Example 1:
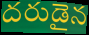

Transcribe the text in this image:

దరుడైన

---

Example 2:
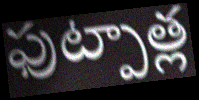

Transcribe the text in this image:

ఫుట్పాత్ల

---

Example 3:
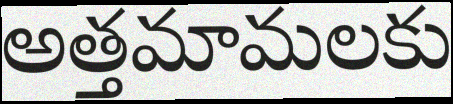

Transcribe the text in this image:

అత్తమామలకు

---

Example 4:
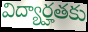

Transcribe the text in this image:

విద్యార్హతకు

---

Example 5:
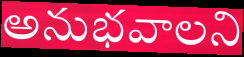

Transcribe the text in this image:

అనుభవాలని